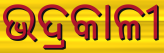
ଭଦ୍ରକାଳୀ